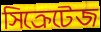
সিক্রেটেজ